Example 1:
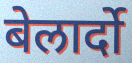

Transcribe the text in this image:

बेलार्दो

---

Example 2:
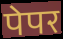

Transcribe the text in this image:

पेपर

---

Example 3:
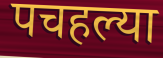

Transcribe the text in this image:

पचहल्या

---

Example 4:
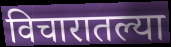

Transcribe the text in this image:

विचारातल्या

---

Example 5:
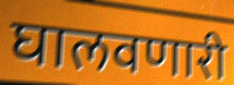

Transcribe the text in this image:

घालवणारी